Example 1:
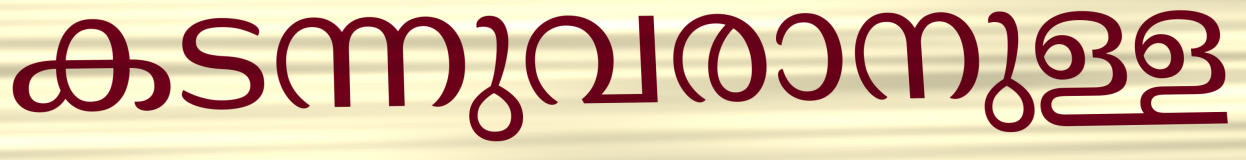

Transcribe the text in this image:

കടന്നുവരാനുള്ള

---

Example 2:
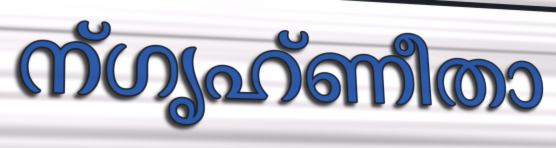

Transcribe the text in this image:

ന്ഗൃഹ്ണീതാ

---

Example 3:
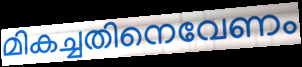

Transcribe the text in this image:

മികച്ചതിനെവേണം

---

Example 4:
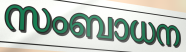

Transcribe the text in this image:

സംബാധന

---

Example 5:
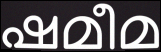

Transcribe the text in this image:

ഷമീമ